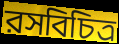
রসবিচিত্র